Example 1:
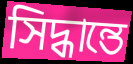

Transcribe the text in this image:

সিদ্ধান্তে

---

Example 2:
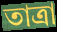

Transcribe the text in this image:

তাত্রা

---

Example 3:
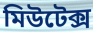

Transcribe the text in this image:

মিউটেক্স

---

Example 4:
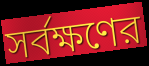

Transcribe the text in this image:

সর্বক্ষণের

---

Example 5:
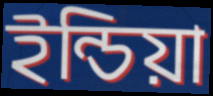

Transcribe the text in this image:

ইন্ডিয়া